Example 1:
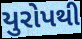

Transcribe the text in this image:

યુરોપથી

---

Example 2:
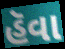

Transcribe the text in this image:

હૅવા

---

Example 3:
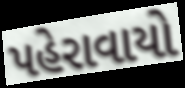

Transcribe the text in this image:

પહેરાવાયો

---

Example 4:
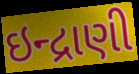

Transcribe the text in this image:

ઇન્દ્રાણી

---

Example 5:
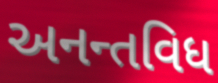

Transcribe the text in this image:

અનન્તવિધ